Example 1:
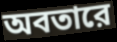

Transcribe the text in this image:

অবতারে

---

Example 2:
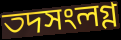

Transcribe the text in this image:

তদসংলগ্ন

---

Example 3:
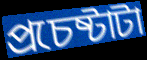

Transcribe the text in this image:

প্রচেষ্টাটা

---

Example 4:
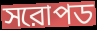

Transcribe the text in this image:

সরোপড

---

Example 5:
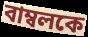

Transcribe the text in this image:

বাম্বলকে